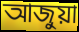
আজুয়া